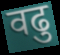
वढु